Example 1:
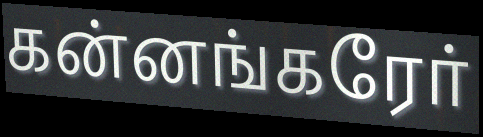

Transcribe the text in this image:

கன்னங்கரேர்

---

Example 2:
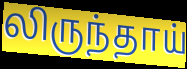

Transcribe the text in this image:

லிருந்தாய்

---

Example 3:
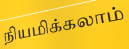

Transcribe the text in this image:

நியமிக்கலாம்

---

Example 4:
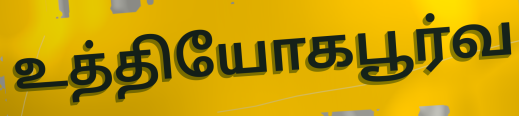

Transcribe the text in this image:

உத்தியோகபூர்வ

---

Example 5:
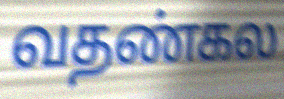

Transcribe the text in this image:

வதண்கல